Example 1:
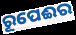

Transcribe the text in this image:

ରୂପେଈର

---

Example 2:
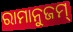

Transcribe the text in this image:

ରାମାନୁଜମ୍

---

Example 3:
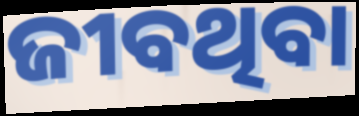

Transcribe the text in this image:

ଜୀବଥିବା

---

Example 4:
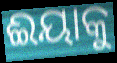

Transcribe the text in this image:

ଈୟାକୁ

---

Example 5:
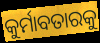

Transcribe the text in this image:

କୁର୍ମାବତାରକୁ